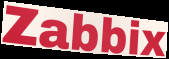
Zabbix